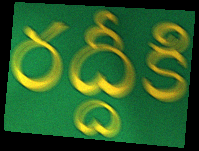
రద్దీకి